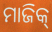
ମାଜିକ୍